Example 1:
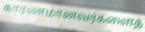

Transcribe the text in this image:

காரணமானவர்களைத்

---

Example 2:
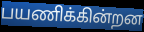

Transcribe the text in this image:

பயணிக்கின்றன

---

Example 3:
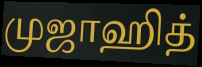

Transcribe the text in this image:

முஜாஹித்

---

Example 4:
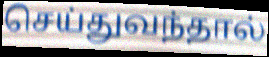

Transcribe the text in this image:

செய்துவந்தால்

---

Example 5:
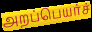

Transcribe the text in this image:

அறப்பெயர்ச்